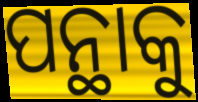
ପନ୍ଥାକୁ